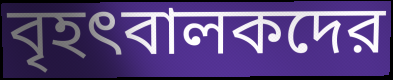
বৃহৎবালকদের